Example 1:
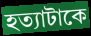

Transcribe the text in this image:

হত্যাটাকে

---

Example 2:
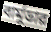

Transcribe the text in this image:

বার্মুডার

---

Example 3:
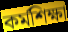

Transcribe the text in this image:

কর্মশিক্ষা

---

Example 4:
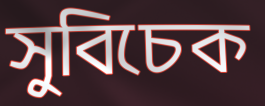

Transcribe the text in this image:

সুবিচেক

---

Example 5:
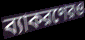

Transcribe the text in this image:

ব্যাকরণেরও